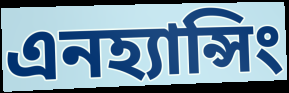
এনহ্যান্সিং